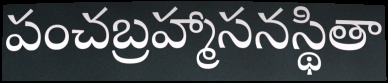
పంచబ్రహ్మాసనస్థితా